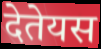
देतेयस